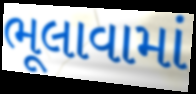
ભૂલાવામાં